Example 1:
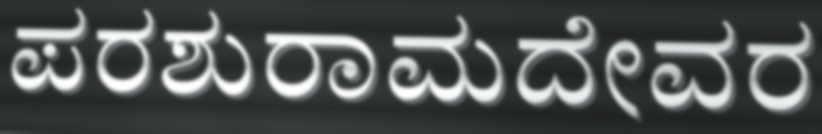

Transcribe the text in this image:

ಪರಶುರಾಮದೇವರ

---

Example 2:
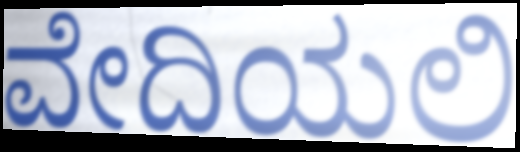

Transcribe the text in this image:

ವೇದಿಯಲಿ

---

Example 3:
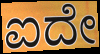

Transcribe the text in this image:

ಐದೇ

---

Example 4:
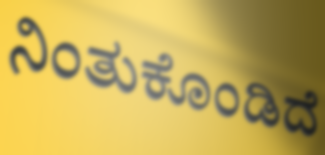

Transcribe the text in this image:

ನಿಂತುಕೊಂಡಿದೆ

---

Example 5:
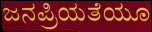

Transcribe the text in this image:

ಜನಪ್ರಿಯತೆಯೂ